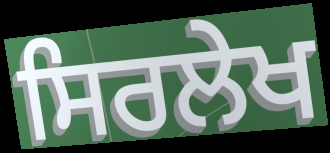
ਸਿਰਲੇਖ